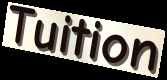
Tuition